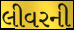
લીવરની